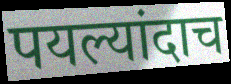
पयल्यांदाच